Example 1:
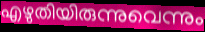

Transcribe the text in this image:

എഴുതിയിരുന്നുവെന്നും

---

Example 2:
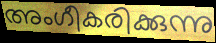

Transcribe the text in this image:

അംഗീകരിക്കുന്നു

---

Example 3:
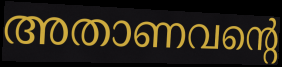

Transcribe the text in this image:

അതാണവന്റെ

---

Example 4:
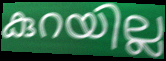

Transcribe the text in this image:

കുറയില്ല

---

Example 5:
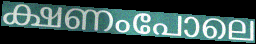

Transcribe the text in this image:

ക്ഷണംപോലെ